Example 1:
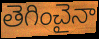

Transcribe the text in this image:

తెగించైనా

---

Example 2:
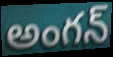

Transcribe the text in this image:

అంగన్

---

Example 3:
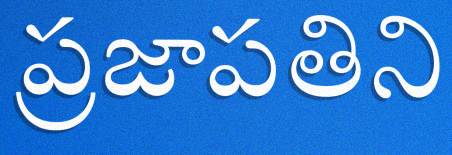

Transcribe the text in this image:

ప్రజాపతిని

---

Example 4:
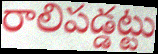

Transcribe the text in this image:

రాలిపడ్డట్టు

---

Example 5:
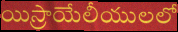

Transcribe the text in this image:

యిస్రాయేలీయులలో